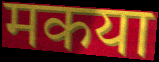
मकया